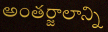
అంతర్జాలాన్ని